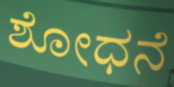
ಶೋಧನೆ